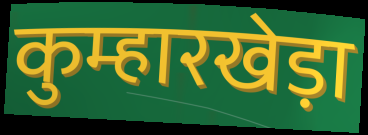
कुम्हारखेड़ा